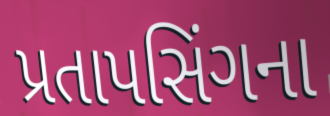
પ્રતાપસિંગના